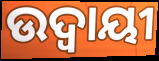
ଉଦ୍ବାୟୀ